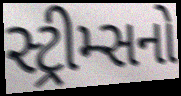
સ્ટ્રીમ્સનો